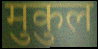
मुकुल